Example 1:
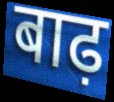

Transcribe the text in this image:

बाढ़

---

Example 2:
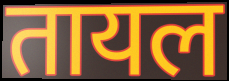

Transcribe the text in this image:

तायल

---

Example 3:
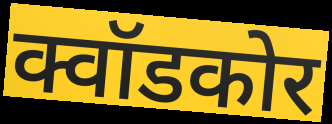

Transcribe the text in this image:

क्वॉडकोर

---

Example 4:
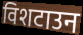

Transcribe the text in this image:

विशटाउन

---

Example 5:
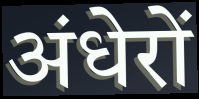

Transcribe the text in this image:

अंधेरों